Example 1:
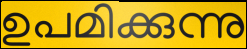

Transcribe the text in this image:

ഉപമിക്കുന്നു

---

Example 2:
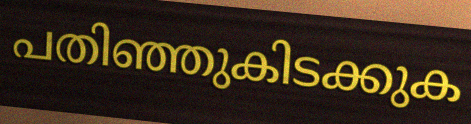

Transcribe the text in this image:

പതിഞ്ഞുകിടക്കുക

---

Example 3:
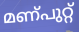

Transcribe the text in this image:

മണ്പുറ്റ്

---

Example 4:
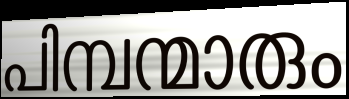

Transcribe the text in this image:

പിമ്പന്മാരും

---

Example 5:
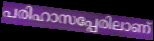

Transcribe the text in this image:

പരിഹാസപ്പേരിലാണ്